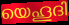
യെഹൂദി